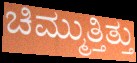
ಚಿಮ್ಮುತ್ತಿತ್ತು